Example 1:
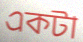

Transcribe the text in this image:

একটা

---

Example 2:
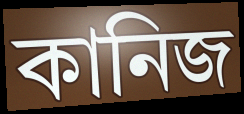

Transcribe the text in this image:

কানিজ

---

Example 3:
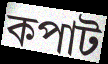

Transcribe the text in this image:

কপাট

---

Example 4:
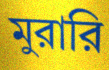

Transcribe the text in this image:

মুরারি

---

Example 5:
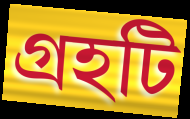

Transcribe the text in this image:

গ্রহটি